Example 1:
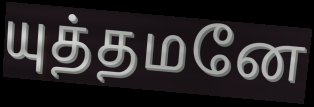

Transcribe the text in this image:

யுத்தமனே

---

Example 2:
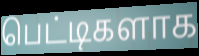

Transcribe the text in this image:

பெட்டிகளாக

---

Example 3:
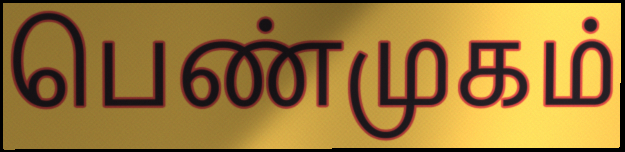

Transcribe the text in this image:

பெண்முகம்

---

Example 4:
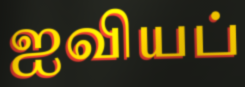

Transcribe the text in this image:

ஐவியப்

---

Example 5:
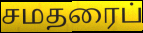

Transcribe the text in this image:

சமதரைப்